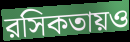
রসিকতায়ও